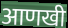
आणखी